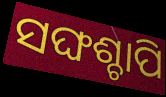
ସଙ୍ଘଶ୍ଚାପି